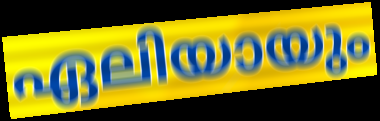
ഏലിയായും